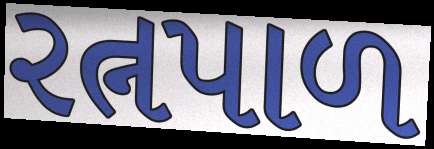
રત્નપાળ